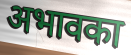
अभावका